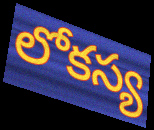
లోకస్య